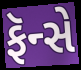
ફૅન્સે